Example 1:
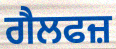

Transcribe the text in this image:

ਗੈਲਫਜ਼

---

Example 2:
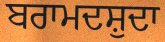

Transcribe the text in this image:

ਬਰਾਮਦਸ਼ੁਦਾ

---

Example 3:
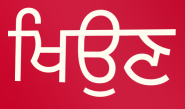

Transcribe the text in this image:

ਖਿਉਣ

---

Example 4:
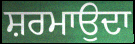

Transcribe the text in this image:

ਸ਼ਰਮਾਉਦਾ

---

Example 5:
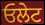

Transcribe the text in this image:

ਓਲੇਟ